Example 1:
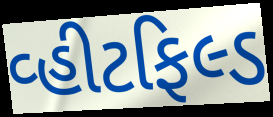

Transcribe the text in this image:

વ્હીટફિલ્ડ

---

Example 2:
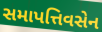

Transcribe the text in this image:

સમાપત્તિવસેન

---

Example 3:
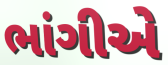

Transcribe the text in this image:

ભાંગીએ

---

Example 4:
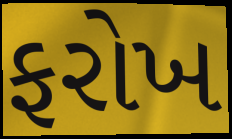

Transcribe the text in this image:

ફરોખ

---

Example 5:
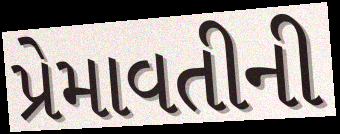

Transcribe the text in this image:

પ્રેમાવતીની